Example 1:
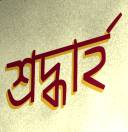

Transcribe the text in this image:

শ্রদ্ধার্হ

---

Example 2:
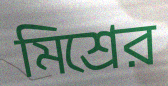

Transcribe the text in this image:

মিশ্রের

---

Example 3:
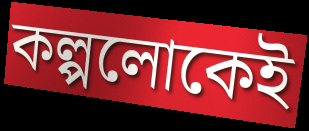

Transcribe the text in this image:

কল্পলোকেই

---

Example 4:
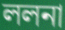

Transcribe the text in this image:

ললনা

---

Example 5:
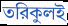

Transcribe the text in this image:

তরিকুলই